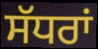
ਸੱਧਰਾਂ